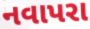
નવાપરા